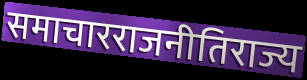
समाचारराजनीतिराज्य